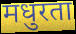
मधुरता